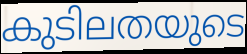
കുടിലതയുടെ